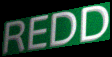
REDD